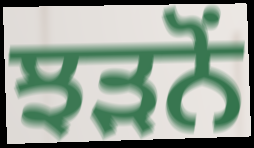
ਝੜਨੋਂ